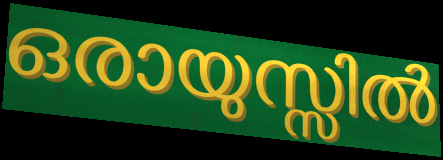
ഒരായുസ്സിൽ